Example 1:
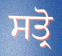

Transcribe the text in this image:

ਸਤ੍ਰੋ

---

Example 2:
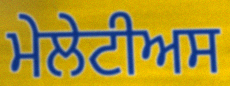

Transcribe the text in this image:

ਮੇਲੇਟੀਅਸ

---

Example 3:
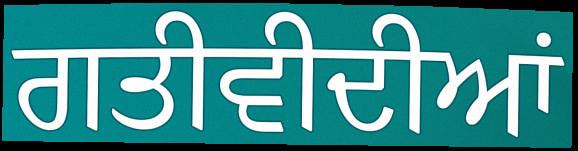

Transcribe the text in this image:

ਗਤੀਵੀਦੀਆਂ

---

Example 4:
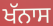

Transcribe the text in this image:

ਖੱਨਾਸ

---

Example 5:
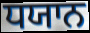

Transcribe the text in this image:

ਧਯਾਨ